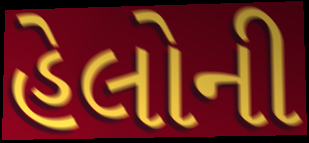
હેલોની